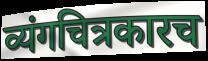
व्यंगचित्रकारच